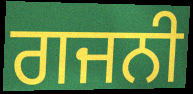
ਗਜਨੀ